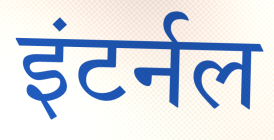
इंटर्नल